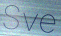
Sve